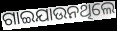
ଗାଇଯାଉନଥିଲେ